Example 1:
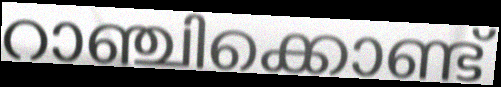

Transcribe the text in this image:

റാഞ്ചിക്കൊണ്ട്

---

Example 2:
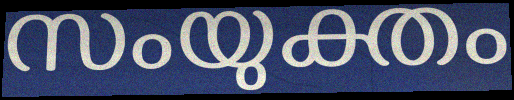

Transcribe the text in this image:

സംയുക്തം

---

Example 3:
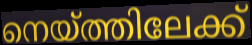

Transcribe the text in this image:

നെയ്ത്തിലേക്ക്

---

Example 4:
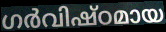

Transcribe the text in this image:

ഗർവിഷ്ഠമായ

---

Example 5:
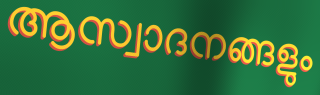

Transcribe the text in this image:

ആസ്വാദനങ്ങളും